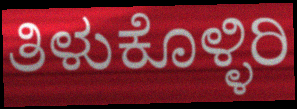
ತಿಳುಕೊಳ್ಳಿರಿ